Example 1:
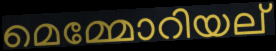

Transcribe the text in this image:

മെമ്മോറിയല്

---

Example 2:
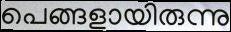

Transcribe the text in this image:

പെങ്ങളായിരുന്നു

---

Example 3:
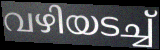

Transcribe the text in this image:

വഴിയടച്ച്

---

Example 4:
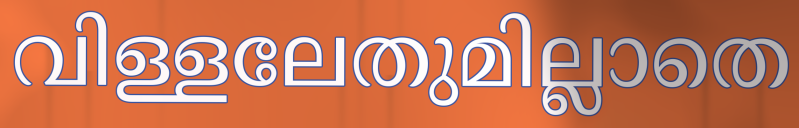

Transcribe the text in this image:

വിള്ളലേതുമില്ലാതെ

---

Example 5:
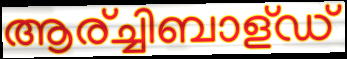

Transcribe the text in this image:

ആര്ച്ചിബാള്ഡ്